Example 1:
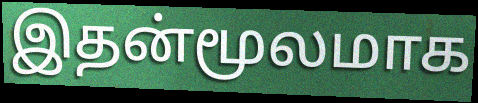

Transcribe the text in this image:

இதன்மூலமாக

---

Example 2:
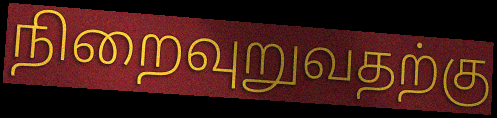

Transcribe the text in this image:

நிறைவுறுவதற்கு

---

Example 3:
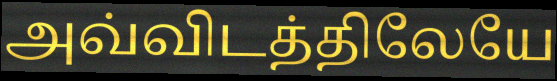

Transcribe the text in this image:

அவ்விடத்திலேயே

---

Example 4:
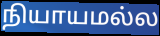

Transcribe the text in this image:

நியாயமல்ல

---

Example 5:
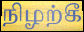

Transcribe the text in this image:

நிழற்கீ